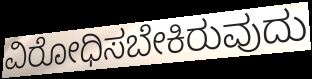
ವಿರೋಧಿಸಬೇಕಿರುವುದು